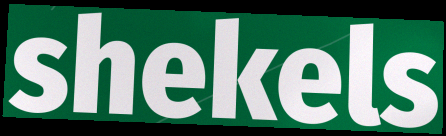
shekels